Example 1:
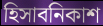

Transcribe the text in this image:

হিসাবনিকাশ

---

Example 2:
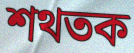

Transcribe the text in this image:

শথতক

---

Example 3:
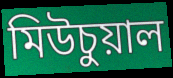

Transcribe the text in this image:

মিউচুয়াল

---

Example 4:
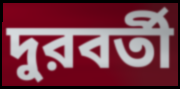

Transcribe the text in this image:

দুরবর্তী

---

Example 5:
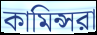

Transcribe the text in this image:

কামিন্সরা